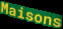
Maisons